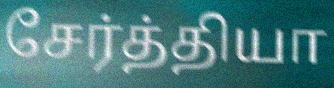
சேர்த்தியா